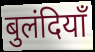
बुलंदियाँ